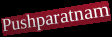
Pushparatnam